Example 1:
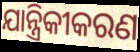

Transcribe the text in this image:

ଯାନ୍ତ୍ରିକୀକରଣ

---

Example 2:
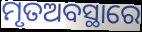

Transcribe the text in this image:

ମୃତଅବସ୍ଥାରେ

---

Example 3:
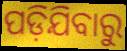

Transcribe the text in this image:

ପଡ଼ିଯିବାରୁ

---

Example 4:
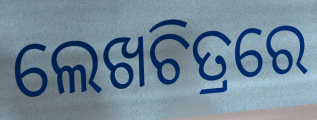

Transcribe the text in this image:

ଲେଖଚିତ୍ରରେ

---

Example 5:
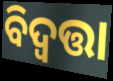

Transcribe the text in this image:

ବିଦ୍ୱତ୍ତା